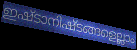
ഇഷ്ടാനിഷ്ടങ്ങളെല്ലാം